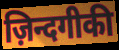
ज़िन्दगीकी